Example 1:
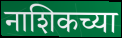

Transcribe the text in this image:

नाशिकच्या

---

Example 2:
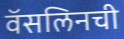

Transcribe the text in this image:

वॅसलिनची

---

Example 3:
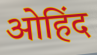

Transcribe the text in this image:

ओहिंद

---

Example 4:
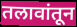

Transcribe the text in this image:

तलावांतून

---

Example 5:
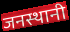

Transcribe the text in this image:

जनस्थानी